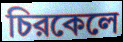
চিরকেলে